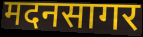
मदनसागर